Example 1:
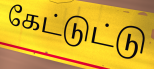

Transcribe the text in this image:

கேட்டுட்டு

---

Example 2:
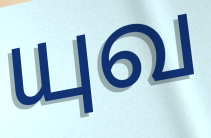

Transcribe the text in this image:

யுவ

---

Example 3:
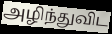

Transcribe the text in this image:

அழிந்துவிட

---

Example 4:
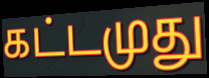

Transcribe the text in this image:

கட்டமுது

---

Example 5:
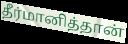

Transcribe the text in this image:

தீர்மானித்தான்